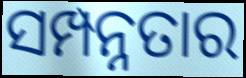
ସମ୍ପନ୍ନତାର